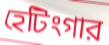
হেটিংগার